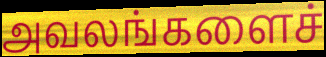
அவலங்களைச்